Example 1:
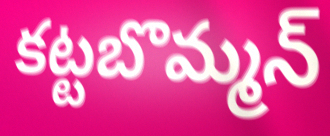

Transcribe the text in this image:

కట్టబొమ్మన్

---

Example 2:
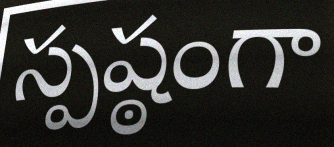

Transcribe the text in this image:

స్పష్ఠంగా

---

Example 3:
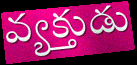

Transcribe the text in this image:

వ్యక్తుడు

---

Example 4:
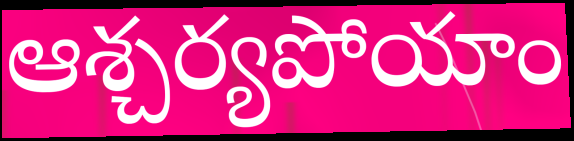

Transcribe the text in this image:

ఆశ్చర్యపోయాం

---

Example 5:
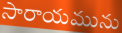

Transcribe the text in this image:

సారాయమును